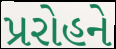
પ્રરોહને